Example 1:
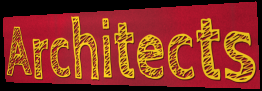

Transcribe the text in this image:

Architects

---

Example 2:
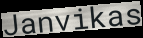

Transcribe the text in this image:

Janvikas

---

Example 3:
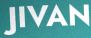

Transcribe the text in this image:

JIVAN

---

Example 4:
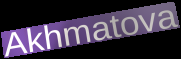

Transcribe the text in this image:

Akhmatova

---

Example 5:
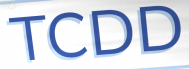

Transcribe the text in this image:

TCDD